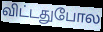
விட்டதுபோல